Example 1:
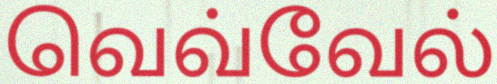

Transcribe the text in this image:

வெவ்வேல்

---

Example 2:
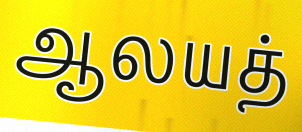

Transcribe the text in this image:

ஆலயத்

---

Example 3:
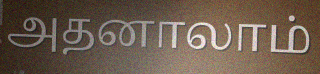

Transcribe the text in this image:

அதனாலாம்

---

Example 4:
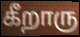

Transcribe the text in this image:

கீறாரு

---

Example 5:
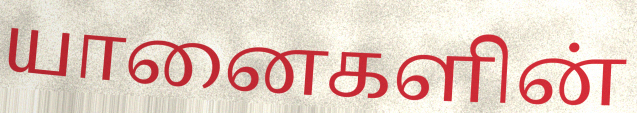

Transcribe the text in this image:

யானைகளின்